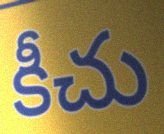
కీచు